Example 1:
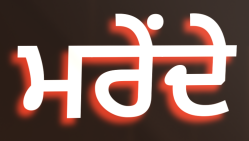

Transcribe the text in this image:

ਮਰੇਂਦੇ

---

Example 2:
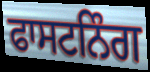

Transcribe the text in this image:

ਫਾਸਟਨਿੰਗ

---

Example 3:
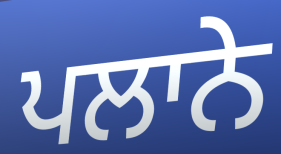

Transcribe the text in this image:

ਪਲਾਨੇ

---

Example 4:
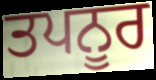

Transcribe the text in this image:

ਤਪਨੂਰ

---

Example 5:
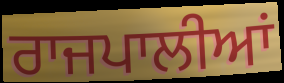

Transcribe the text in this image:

ਰਾਜਪਾਲੀਆਂ